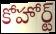
కోహోర్ట్